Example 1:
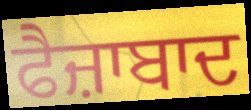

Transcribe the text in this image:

ਫੈਜ਼ਾਬਾਦ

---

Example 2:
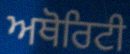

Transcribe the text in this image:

ਅਥੋਰਿਟੀ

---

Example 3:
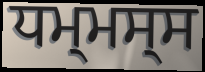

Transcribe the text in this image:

ਧਮ੍ਮਸ੍ਸ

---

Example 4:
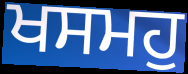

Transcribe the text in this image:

ਖਸਮਹੁ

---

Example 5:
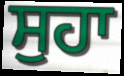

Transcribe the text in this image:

ਸੁਹਾ